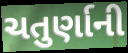
ચતુર્ણાની